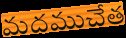
మదముచేత